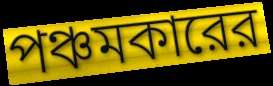
পঞ্চমকারের